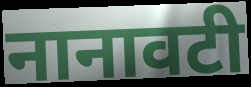
नानावटी